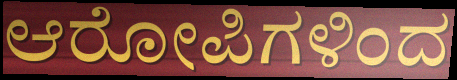
ಆರೋಪಿಗಳಿಂದ